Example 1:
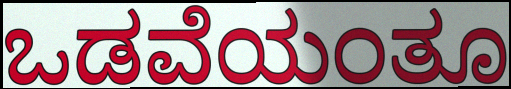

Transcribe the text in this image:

ಒಡವೆಯಂತೂ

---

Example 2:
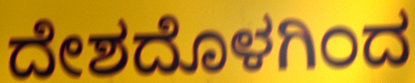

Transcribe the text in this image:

ದೇಶದೊಳಗಿಂದ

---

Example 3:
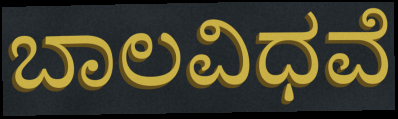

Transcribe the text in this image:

ಬಾಲವಿಧವೆ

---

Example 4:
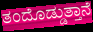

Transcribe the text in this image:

ತಂದೊಡ್ಡುತ್ತಾನೆ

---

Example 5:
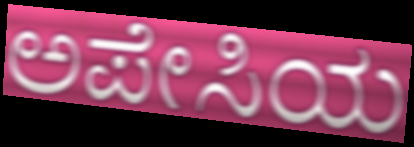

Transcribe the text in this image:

ಅಪೇಸಿಯ